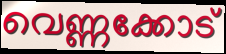
വെണ്ണക്കോട്